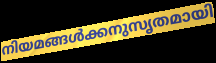
നിയമങ്ങൾക്കനുസൃതമായി